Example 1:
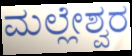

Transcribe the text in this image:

ಮಲ್ಲೇಶ್ವರ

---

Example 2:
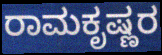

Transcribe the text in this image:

ರಾಮಕೃಷ್ಣರ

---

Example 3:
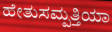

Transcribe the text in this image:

ಹೇತುಸಮ್ಪತ್ತಿಯಾ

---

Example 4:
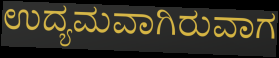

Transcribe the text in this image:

ಉದ್ಯಮವಾಗಿರುವಾಗ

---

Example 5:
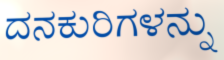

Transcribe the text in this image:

ದನಕುರಿಗಳನ್ನು